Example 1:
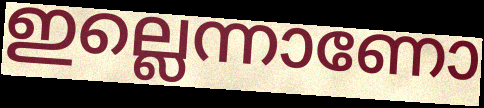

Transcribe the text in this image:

ഇല്ലെന്നാണോ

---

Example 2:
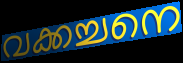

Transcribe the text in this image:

വക്കച്ചനെ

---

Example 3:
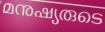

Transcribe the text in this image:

മനുഷ്യരുടെ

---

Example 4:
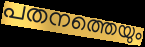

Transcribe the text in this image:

പതനത്തെയും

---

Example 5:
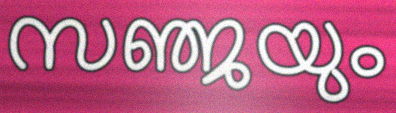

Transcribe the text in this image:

സഞ്ജയും